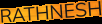
RATHNESH